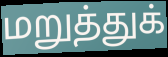
மறுத்துக்